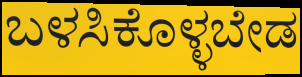
ಬಳಸಿಕೊಳ್ಳಬೇಡ